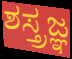
ಶಸ್ತ್ರಜ್ಞ